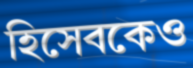
হিসেবকেও